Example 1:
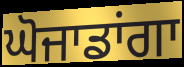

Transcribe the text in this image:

ਘੋਜਾਡਾਂਗਾ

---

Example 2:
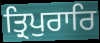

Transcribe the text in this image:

ਤ੍ਰਿਪੁਰਾਰਿ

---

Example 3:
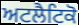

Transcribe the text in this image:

ਅਟਲੈਟਿਕੋ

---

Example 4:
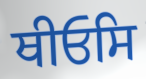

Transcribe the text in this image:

ਥੀਓਸਿ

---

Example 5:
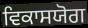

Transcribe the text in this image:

ਵਿਕਾਸਯੋਗ